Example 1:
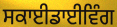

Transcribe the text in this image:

ਸਕਾਈਡਾਈਵਿੰਗ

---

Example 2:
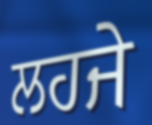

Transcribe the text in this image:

ਲਹਜੇ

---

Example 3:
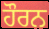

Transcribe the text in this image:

ਹੌਰਨ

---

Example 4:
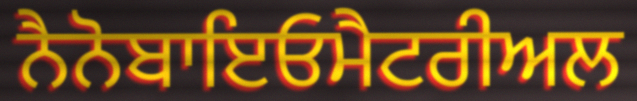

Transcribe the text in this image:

ਨੈਨੋਬਾਇਓਮੈਟਰੀਅਲ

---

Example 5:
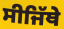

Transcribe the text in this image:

ਸੀਜਿੱਥੇ